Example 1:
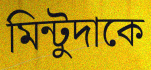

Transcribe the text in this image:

মিন্টুদাকে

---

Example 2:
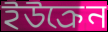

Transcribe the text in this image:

ইউক্রেন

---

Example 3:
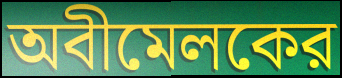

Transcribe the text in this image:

অবীমেলকের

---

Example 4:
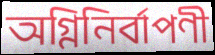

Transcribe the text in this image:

অগ্নিনির্বাপণী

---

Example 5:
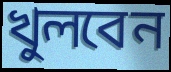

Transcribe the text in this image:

খুলবেন